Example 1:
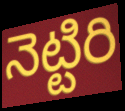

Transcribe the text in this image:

నెట్టిరి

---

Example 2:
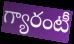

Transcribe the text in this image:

గ్యారంటీ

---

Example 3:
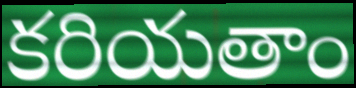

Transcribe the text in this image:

కరియతాం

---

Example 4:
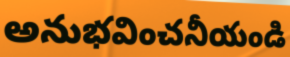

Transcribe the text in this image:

అనుభవించనీయండి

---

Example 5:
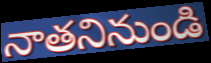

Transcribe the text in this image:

నాతనినుండి